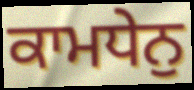
ਕਾਮਧੇਨੁ